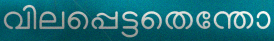
വിലപ്പെട്ടതെന്തോ